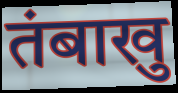
तंबाखु